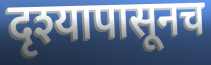
दृश्यापासूनच